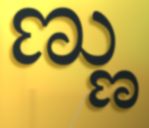
ಣ್ಣು